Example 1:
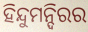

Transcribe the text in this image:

ହିନ୍ଦୁମନ୍ଦିରର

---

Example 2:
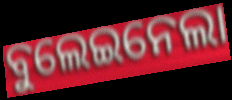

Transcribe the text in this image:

ବୁଲେଇନେଲା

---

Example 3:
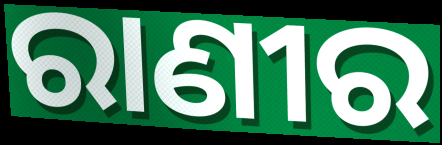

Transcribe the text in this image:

ରାଣୀର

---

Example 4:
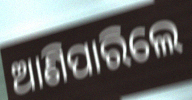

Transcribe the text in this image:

ଆଣିପାରିଲେ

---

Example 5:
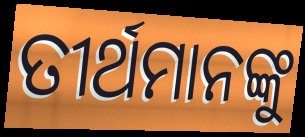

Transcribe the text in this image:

ତୀର୍ଥମାନଙ୍କୁ